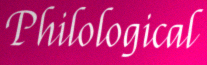
Philological